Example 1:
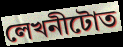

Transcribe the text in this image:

লেখনীটোত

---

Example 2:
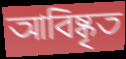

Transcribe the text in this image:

আবিষ্কৃত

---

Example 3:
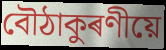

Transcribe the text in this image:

বৌঠাকুৰণীয়ে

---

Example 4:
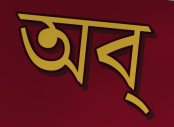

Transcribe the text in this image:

অব্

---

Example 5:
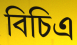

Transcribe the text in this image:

বিচিএ